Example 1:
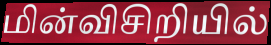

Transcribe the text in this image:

மின்விசிறியில்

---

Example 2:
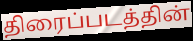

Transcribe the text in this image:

திரைப்படத்தின்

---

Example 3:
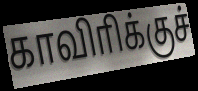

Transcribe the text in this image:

காவிரிக்குச்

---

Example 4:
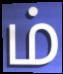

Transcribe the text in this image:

ம்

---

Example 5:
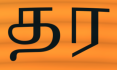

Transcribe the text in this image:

தர